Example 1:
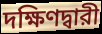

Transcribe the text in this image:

দক্ষিণদ্বারী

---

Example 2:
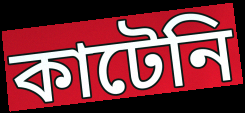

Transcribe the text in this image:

কাটেনি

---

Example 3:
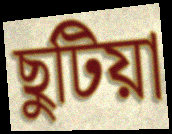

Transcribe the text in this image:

ছুটিয়া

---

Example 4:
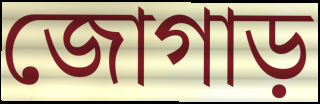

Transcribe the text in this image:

জোগাড়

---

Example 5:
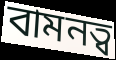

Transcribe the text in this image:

বামনত্ব